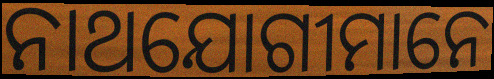
ନାଥଯୋଗୀମାନେ